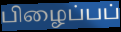
பிழைப்பப்